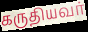
கருதியவர்